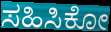
ಸಹಿಸಿಕೋ